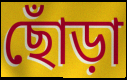
ছোঁড়া